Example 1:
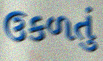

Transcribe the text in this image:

ઉકળતું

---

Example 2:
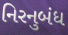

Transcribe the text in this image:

નિરનુબંધ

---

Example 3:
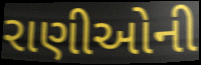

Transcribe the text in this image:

રાણીઓની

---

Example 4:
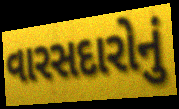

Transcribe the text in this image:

વારસદારોનું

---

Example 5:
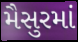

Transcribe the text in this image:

મૈસુરમાં